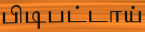
பிடிபட்டாய்